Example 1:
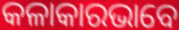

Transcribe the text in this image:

କଳାକାରଭାବେ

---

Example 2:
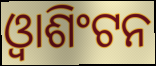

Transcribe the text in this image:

ଓ୍ୱାଶିଂଟନ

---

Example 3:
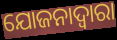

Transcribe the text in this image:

ଯୋଜନାଦ୍ୱାରା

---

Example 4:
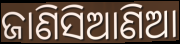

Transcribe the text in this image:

ଜାଣିସିଆଣିଆ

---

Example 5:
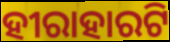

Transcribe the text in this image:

ହୀରାହାରଟି